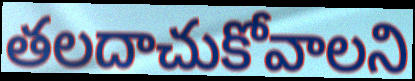
తలదాచుకోవాలని